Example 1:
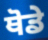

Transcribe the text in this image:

ਥੋਡੇ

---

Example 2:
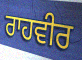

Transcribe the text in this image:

ਰਾਹਵੀਰ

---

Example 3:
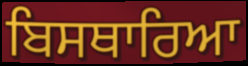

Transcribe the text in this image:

ਬਿਸਥਾਰਿਆ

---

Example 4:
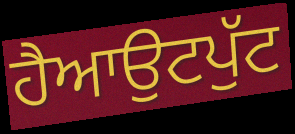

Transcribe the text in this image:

ਹੈਆਉਟਪੁੱਟ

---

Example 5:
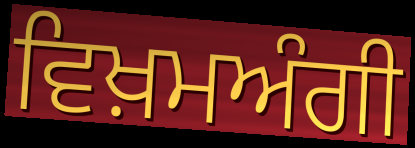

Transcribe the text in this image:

ਵਿਖ਼ਮਅੰਗੀ